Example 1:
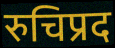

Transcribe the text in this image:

रुचिप्रद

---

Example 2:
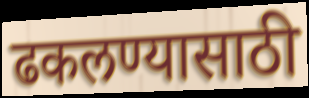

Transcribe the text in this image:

ढकलण्यासाठी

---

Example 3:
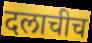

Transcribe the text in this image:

दलाचीच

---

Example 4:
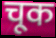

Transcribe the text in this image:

चूक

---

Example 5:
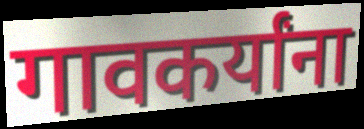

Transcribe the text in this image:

गावकर्यांना